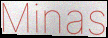
Minas